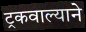
ट्रकवाल्याने